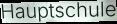
Hauptschule